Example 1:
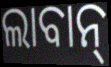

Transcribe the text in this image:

ଲାବାନ୍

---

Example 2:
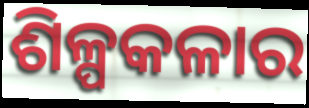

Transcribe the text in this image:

ଶିଳ୍ପକଳାର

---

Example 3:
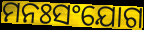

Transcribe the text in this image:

ମନଃସଂଯୋଗ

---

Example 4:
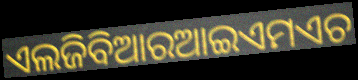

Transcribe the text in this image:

ଏଲଜିବିଆରଆଇଏମଏଚ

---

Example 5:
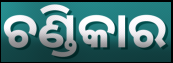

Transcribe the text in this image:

ଚଣ୍ଡିକାର